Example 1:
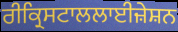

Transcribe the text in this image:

ਰੀਕ੍ਰਿਸਟਾਲਲਾਈਜ਼ੇਸ਼ਨ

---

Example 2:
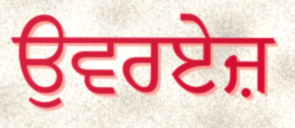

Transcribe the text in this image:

ਉਵਰਏਜ਼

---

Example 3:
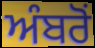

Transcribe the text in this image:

ਅੰਬਰੋਂ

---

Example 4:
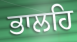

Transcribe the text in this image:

ਭਾਲਹਿ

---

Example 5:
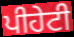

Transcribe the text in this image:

ਪੀਹੇਟੀ